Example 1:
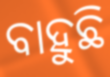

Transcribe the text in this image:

ବାହୁଛି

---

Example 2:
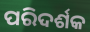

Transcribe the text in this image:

ପରିଦର୍ଶକ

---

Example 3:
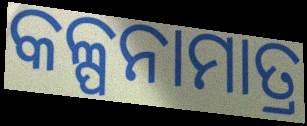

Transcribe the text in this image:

କଳ୍ପନାମାତ୍ର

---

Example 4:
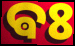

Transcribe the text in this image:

ଵଃ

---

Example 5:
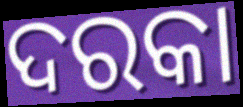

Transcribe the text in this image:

ଦରକା